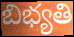
బిభ్యతి